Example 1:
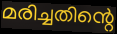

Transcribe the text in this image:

മരിച്ചതിന്റെ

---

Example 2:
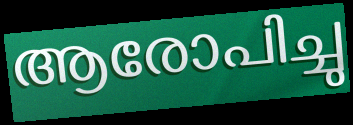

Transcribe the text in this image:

ആരോപിച്ചു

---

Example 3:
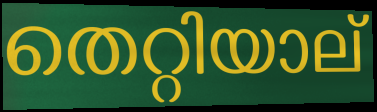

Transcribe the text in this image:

തെറ്റിയാല്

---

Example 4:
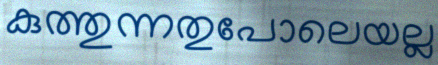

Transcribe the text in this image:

കുത്തുന്നതുപോലെയല്ല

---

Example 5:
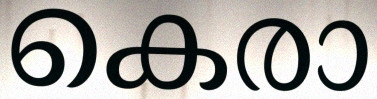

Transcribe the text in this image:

കെരാ